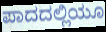
ಪಾದದಲ್ಲಿಯೂ